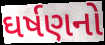
ઘર્ષણનો